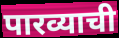
पारव्याची